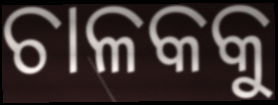
ଚାଳକକୁ